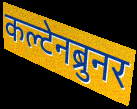
कल्टेनब्रुनर